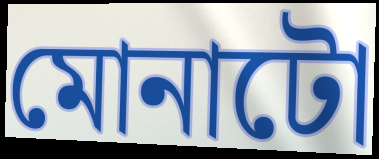
মোনাটো